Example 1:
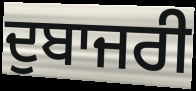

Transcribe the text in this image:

ਦੁਬਾਜਰੀ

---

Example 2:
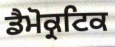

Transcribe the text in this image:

ਡੈਮੋਕ੍ਰਟਿਕ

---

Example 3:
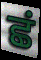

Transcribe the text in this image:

ਛਂ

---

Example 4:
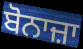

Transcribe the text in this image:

ਬੋਨਾਜ਼ਾ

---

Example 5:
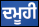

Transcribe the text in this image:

ਦਮੂਹੀ